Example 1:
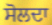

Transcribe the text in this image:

ਸੋਲਦਾ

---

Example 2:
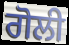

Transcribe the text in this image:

ਗੋਲੀ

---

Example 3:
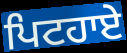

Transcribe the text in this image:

ਪਿਟਹਾਏ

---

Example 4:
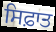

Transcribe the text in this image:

ਸਿਫ਼ਾਤ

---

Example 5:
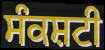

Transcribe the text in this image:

ਸੰਕਸ਼ਟੀ